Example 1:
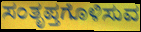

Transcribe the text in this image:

ಸಂತೃಪ್ತಗೊಳಿಸುವ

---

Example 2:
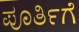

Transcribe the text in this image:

ಪೂರ್ತಿಗೆ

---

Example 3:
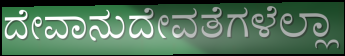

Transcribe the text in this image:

ದೇವಾನುದೇವತೆಗಳೆಲ್ಲಾ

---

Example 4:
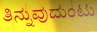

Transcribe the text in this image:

ತಿನ್ನುವುದುಂಟು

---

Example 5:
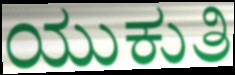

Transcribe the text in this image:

ಯುಕುತಿ